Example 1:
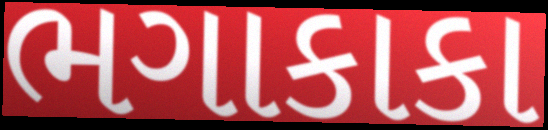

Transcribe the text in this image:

ભગાકાકા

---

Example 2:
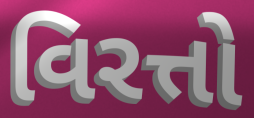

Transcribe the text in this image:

વિરત્તો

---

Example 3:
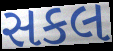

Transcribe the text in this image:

સકલ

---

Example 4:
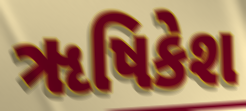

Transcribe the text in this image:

ૠષિકેશ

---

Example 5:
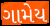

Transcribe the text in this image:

ગામેય